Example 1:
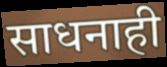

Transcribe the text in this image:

साधनाही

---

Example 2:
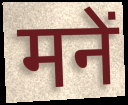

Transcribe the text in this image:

मनें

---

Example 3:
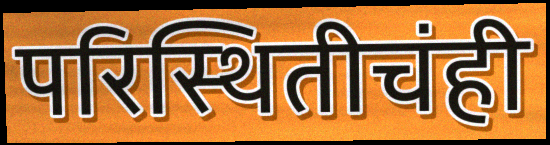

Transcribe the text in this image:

परिस्थितीचंही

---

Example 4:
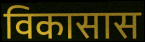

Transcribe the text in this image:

विकासास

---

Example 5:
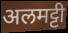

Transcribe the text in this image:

अलमट्टी